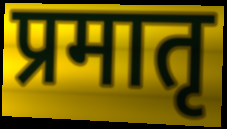
प्रमातृ